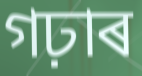
গঢ়াৰ